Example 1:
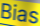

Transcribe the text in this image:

Bias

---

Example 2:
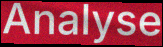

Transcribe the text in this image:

Analyse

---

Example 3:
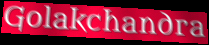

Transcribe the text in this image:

Golakchandra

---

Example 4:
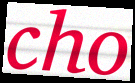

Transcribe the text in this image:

cho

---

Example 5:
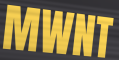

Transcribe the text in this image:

MWNT